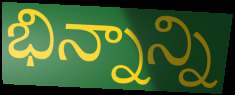
భిన్నాన్ని